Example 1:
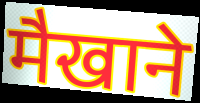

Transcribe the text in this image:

मैखाने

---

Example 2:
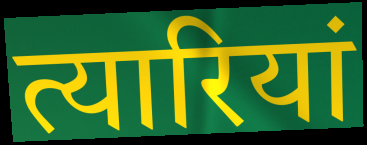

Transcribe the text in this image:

त्यारियां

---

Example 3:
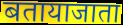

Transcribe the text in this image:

बतायाजाता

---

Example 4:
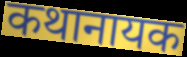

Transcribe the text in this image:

कथानायक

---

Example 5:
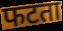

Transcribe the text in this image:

फटता